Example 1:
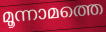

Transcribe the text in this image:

മൂന്നാമത്തെ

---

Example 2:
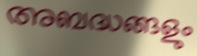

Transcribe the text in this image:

അബദ്ധങ്ങളും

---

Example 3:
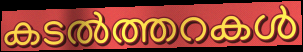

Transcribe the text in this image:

കടൽത്തറകൾ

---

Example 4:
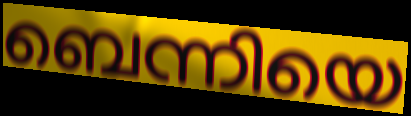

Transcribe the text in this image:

ബെന്നിയെ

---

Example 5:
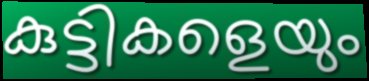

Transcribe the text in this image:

കുട്ടികളെയും